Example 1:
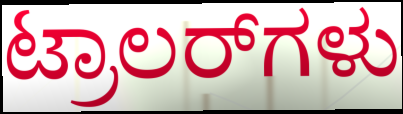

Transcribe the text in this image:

ಟ್ರಾಲರ್‌ಗಳು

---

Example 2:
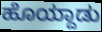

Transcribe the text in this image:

ಹೊಯ್ದಾಡು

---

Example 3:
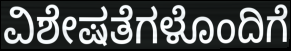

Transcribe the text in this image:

ವಿಶೇಷತೆಗಳೊಂದಿಗೆ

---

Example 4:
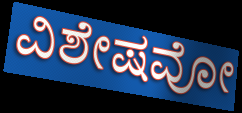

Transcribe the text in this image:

ವಿಶೇಷವೋ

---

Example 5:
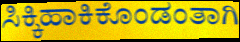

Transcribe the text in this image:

ಸಿಕ್ಕಿಹಾಕಿಕೊಂಡಂತಾಗಿ